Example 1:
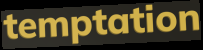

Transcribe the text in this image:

temptation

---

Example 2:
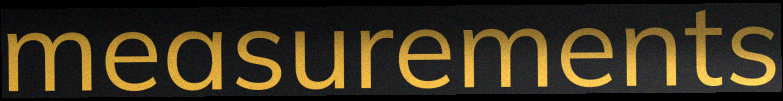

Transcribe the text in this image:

measurements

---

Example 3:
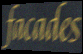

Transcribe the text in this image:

facades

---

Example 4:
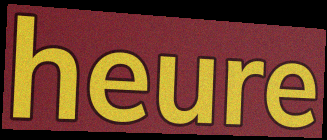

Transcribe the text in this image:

heure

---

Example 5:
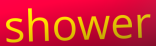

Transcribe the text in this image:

shower